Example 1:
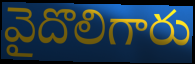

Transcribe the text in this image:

వైదొలిగారు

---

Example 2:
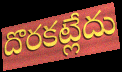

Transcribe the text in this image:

దొరకట్లేదు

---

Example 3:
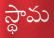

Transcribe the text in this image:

స్థామ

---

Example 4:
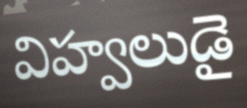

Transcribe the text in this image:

విహ్వలుడై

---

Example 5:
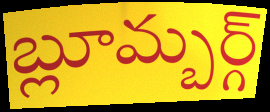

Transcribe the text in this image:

బ్లూమ్బర్గ్